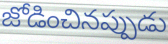
జోడించినప్పుడు